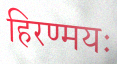
हिरण्मयः